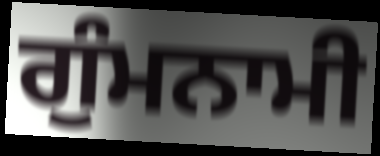
ਗੁੰਮਨਾਮੀ